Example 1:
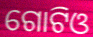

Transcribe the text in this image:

ଗୋଟିଓ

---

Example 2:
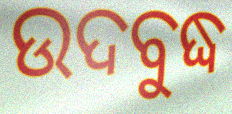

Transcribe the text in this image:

ଉଦବୁଦ୍ଧ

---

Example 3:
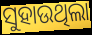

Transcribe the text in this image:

ସୁହାଉଥିଲା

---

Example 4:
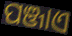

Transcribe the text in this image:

ପଞ୍ଜାଏ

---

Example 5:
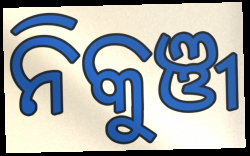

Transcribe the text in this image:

ନିକୁଞ୍ଜ